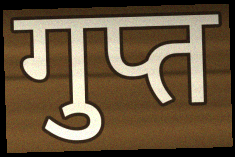
गुप्त